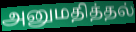
அனுமதித்தல்